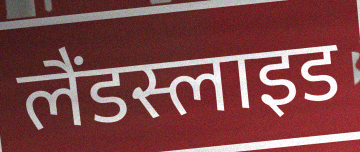
लैंडस्लाइड